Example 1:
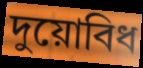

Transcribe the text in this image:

দুয়োবিধ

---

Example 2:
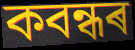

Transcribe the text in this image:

কবন্ধৰ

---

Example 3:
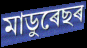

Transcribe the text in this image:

মাডুৰেছৰ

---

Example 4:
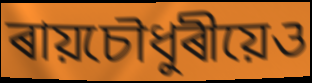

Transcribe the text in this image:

ৰায়চৌধুৰীয়েও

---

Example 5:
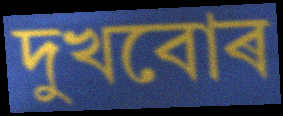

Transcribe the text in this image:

দুখবোৰ